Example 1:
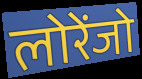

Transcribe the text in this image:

लोरेंजो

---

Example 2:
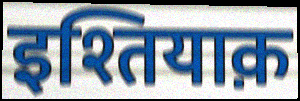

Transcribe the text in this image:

इश्तियाक़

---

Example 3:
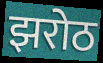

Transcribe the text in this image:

झरोठ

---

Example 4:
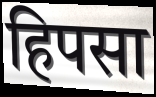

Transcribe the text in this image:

हिपसा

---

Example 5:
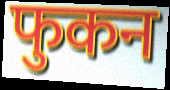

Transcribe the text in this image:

फुकन